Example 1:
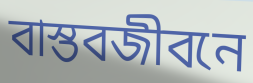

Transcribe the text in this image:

বাস্তবজীবনে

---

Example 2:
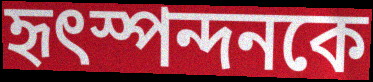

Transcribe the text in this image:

হৃৎস্পন্দনকে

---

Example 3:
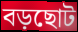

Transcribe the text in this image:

বড়ছোট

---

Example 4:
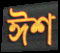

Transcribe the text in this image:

ঈশ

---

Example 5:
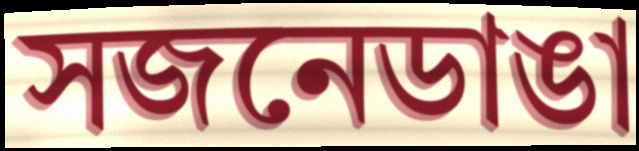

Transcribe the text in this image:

সজনেডাঙা